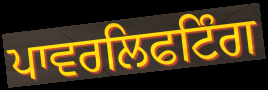
ਪਾਵਰਲਿਫਟਿੰਗ